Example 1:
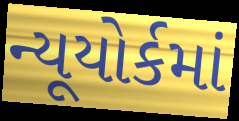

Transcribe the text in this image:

ન્યૂયોર્કમાં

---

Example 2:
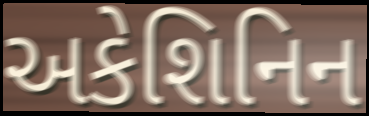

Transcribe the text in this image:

અકેશિનિન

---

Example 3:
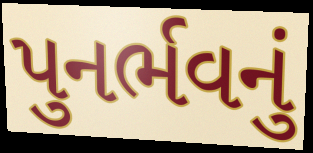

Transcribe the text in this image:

પુનર્ભવનું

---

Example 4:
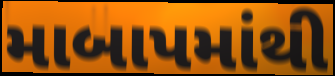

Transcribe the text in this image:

માબાપમાંથી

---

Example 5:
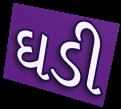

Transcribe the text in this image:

ઘડી